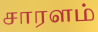
சாரளம்